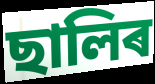
ছালিৰ